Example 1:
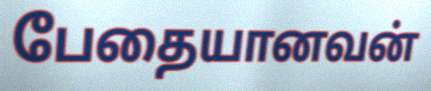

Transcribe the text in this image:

பேதையானவன்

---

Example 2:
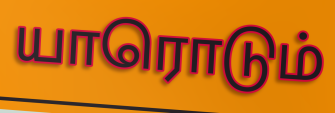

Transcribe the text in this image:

யாரொடும்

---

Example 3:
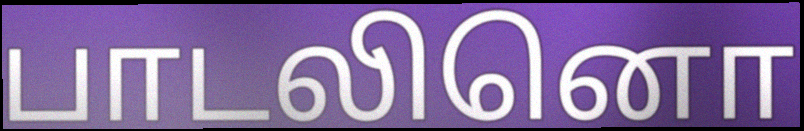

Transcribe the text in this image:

பாடலினொ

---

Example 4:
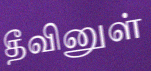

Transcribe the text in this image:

தீவினுள்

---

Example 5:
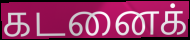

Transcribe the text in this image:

கடனைக்